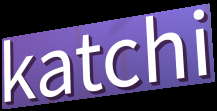
katchi